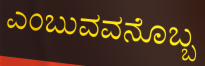
ಎಂಬುವವನೊಬ್ಬ